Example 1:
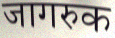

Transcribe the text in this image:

जागरुक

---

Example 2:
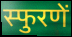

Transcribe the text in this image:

स्फुरणें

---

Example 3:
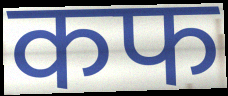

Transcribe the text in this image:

कफ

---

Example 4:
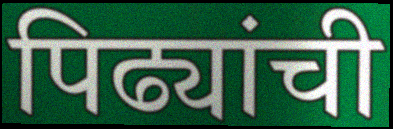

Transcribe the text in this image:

पिढ्यांची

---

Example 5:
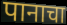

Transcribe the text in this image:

पानाचा